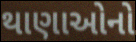
થાણાઓનો